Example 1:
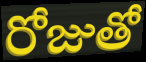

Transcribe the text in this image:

రోజుతో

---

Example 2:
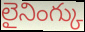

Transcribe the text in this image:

లైనింగ్కు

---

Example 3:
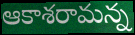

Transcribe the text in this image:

ఆకాశరామన్న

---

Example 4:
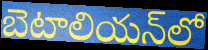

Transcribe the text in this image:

బెటాలియన్‌లో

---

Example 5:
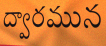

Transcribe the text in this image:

ద్వారమున